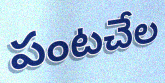
పంటచేల